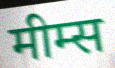
मीम्स